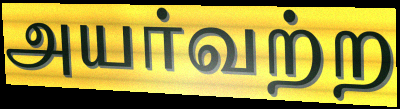
அயர்வற்ற